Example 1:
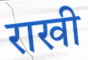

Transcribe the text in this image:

राखी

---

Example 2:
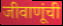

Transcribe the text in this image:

जीवाणूंची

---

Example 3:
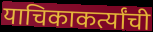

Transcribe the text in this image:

याचिकाकर्त्यांची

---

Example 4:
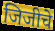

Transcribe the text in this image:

जिजीचे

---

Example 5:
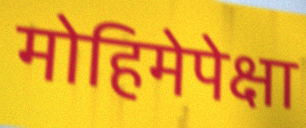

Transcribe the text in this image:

मोहिमेपेक्षा